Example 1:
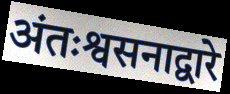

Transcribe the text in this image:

अंतःश्वसनाद्वारे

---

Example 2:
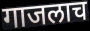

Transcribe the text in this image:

गाजलाच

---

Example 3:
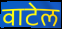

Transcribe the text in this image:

वाटेल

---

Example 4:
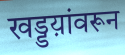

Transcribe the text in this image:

खड्डय़ांवरून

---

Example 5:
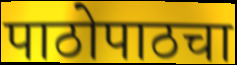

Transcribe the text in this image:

पाठोपाठचा